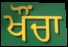
ਖੌੰਚਾ